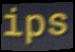
ips